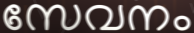
സേവനം